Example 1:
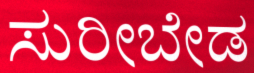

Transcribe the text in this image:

ಸುರೀಬೇಡ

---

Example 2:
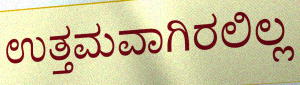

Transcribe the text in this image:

ಉತ್ತಮವಾಗಿರಲಿಲ್ಲ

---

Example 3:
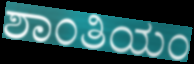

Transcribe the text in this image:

ಶಾಂತಿಯಂ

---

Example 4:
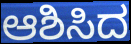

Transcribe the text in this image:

ಆಶಿಸಿದ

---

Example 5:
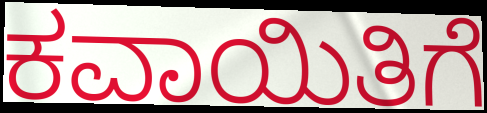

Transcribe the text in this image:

ಕವಾಯಿತಿಗೆ